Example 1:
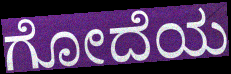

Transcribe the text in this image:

ಗೋದೆಯ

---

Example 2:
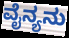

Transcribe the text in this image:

ವೈನ್ಯನು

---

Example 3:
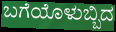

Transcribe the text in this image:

ಬಗೆಯೊಳುಬ್ಬಿದ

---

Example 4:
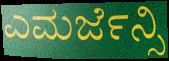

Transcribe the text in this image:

ಎಮರ್ಜೆನ್ಸಿ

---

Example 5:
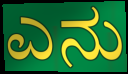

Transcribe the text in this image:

ಎನು